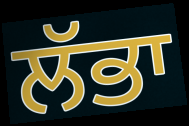
ਲੱਭਾ